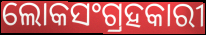
ଲୋକସଂଗ୍ରହକାରୀ